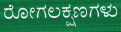
ರೋಗಲಕ್ಷಣಗಳು